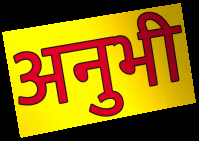
अनुभी